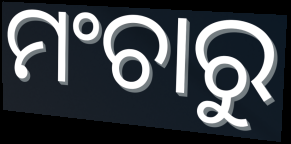
ମଂଚାରୁ